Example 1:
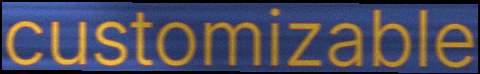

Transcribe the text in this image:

customizable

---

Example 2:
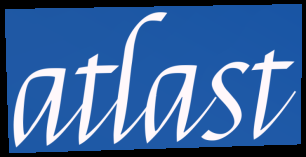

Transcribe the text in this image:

atlast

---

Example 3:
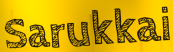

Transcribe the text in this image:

Sarukkai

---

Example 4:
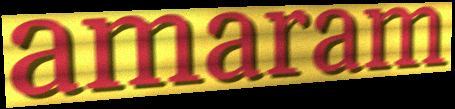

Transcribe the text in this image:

amaram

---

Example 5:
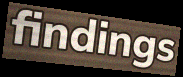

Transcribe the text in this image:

findings